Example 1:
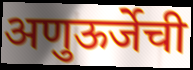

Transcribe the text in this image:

अणुऊर्जेची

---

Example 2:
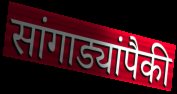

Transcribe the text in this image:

सांगाड्यांपैकी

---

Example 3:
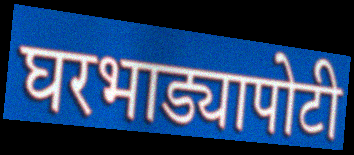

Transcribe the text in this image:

घरभाड्यापोटी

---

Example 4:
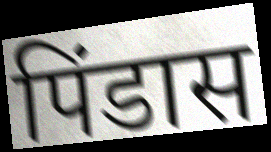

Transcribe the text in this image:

पिंडास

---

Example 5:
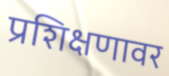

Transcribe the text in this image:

प्रशिक्षणावर